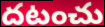
దటంచు